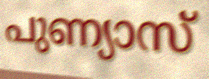
പുണ്യാസ്